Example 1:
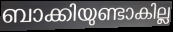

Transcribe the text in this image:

ബാക്കിയുണ്ടാകില്ല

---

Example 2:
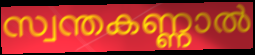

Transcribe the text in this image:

സ്വന്തകണ്ണാൽ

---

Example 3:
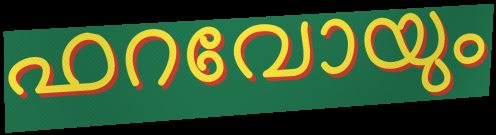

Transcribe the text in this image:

ഫറവോയും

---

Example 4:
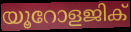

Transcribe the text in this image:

യൂറോളജിക്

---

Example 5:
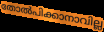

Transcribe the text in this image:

തോൽപിക്കാനാവില്ല